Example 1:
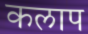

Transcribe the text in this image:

कलाप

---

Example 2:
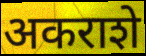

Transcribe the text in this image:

अकराशे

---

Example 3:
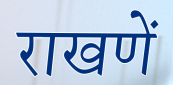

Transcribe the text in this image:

राखणें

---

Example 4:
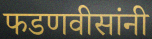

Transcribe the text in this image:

फडणवीसांनी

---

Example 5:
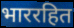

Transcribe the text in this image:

भाररहित